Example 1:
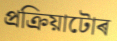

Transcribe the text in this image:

প্ৰক্ৰিয়াটোৰ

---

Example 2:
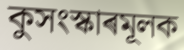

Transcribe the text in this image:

কুসংস্কাৰমূলক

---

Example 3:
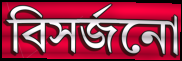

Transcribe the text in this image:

বিসৰ্জনো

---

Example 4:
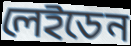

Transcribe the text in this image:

লেইডেন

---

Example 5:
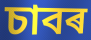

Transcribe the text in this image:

চাবৰ